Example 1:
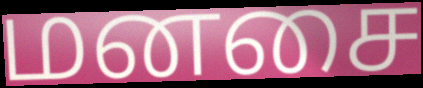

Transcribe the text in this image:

மனசை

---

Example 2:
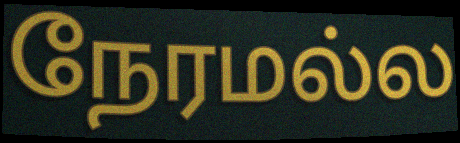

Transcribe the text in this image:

நேரமல்ல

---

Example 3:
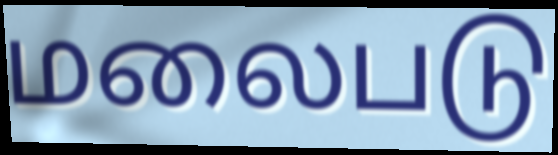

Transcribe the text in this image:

மலைபடு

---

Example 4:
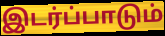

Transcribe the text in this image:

இடர்ப்பாடும்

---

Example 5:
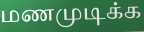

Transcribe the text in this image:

மணமுடிக்க